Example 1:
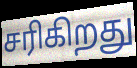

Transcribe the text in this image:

சரிகிறது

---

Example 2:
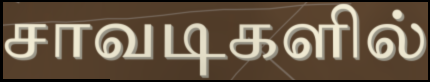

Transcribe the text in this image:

சாவடிகளில்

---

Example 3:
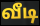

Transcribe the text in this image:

வீடி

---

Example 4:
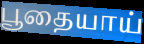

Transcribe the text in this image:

பூதையாய்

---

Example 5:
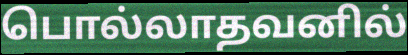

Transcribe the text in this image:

பொல்லாதவனில்